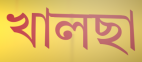
খালছা